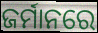
ଜର୍ମାନରେ